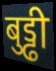
बुड्ढी